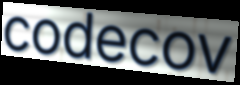
codecov